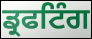
ਡ੍ਰਫਟਿੰਗ